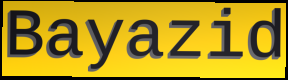
Bayazid